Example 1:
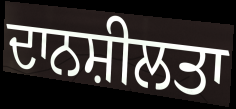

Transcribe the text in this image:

ਦਾਨਸ਼ੀਲਤਾ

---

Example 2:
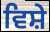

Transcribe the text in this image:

ਵਿਸ਼ੇ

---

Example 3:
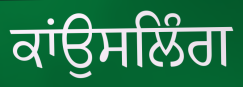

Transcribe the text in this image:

ਕਾਂਉਸਲਿੰਗ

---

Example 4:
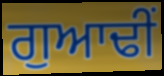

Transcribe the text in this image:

ਗੁਆਢੀਂ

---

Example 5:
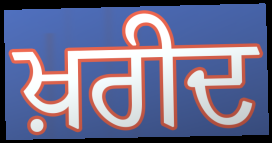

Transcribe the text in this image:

ਖ਼ਰੀਦ